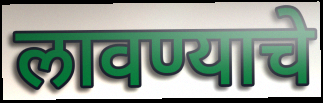
लावण्याचे